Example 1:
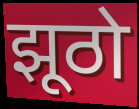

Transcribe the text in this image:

झूठो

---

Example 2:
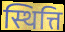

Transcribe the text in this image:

स्थित्ति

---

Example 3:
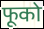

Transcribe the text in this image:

फूको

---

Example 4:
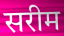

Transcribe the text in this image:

सरीम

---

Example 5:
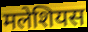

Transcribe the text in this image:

मलेशियस